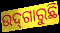
ଉଦ୍‌ଗାରୁଛି